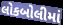
લોકબોલીમાં